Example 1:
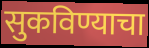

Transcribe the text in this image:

सुकविण्याचा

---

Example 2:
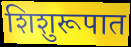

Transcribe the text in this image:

शिशुरूपात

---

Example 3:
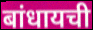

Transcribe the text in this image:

बांधायची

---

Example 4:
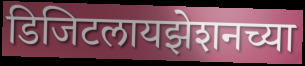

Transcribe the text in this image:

डिजिटलायझेशनच्या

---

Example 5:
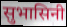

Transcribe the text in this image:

सुभासिनी